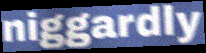
niggardly